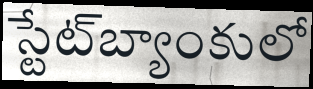
స్టేట్‌బ్యాంకులో